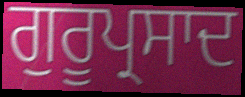
ਗੁਰੂਪ੍ਰਸਾਦ